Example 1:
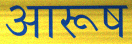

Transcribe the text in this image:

आरूष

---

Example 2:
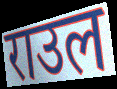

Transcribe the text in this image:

राउल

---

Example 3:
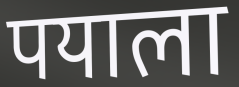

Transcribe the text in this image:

पयाला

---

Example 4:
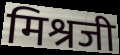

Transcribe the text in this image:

मिश्रजी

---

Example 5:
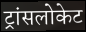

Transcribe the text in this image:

ट्रांसलोकेट